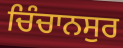
ਚਿੰਚਾਨਸੁਰ